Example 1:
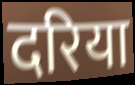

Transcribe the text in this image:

दरिया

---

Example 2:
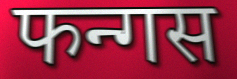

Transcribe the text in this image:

फन्गस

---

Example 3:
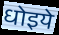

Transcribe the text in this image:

धोइये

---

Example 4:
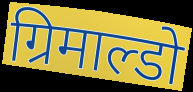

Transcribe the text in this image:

ग्रिमाल्डो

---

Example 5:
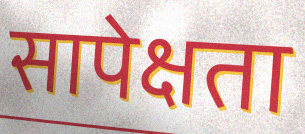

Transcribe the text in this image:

सापेक्षता